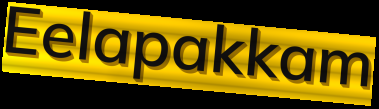
Eelapakkam